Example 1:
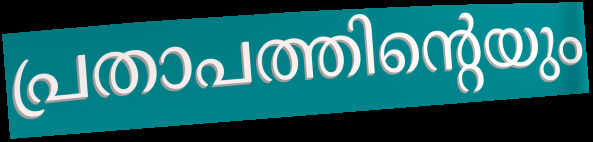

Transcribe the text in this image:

പ്രതാപത്തിന്റെയും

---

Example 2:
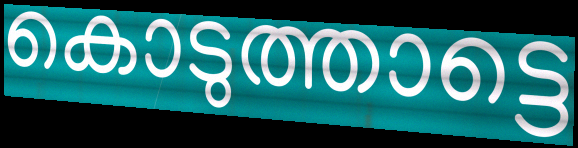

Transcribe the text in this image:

കൊടുത്താട്ടെ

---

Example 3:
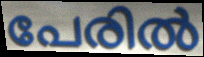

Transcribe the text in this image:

പേരിൽ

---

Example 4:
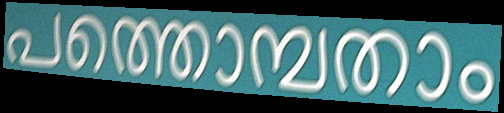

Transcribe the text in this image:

പത്തൊമ്പതാം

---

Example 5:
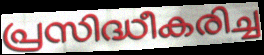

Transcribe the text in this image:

പ്രസിദ്ധീകരിച്ച